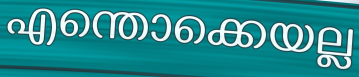
എന്തൊക്കെയല്ല